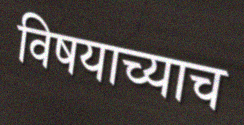
विषयाच्याच